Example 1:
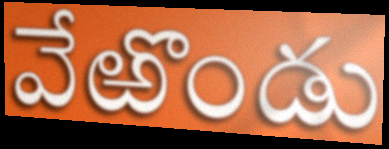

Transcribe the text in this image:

వేఱొండు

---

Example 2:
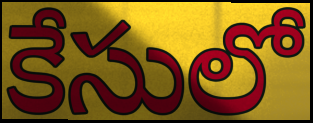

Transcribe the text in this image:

కేసులో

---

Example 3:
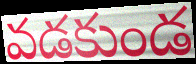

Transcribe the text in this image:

వడకుండ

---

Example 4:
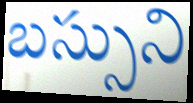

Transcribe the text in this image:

బస్సుని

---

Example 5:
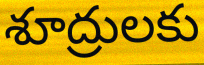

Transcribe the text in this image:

శూద్రులకు